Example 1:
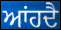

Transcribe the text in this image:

ਆਂਹਦੈ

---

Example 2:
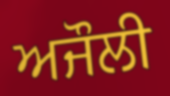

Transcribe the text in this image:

ਅਜੌਲੀ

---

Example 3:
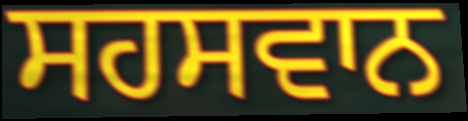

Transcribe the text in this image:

ਸਹਸਵਾਨ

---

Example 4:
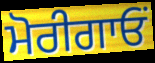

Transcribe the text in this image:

ਮੋਰੀਗਾਓਂ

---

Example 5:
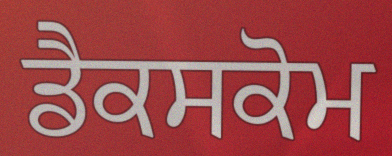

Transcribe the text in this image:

ਡੈਕਸਕੋਮ